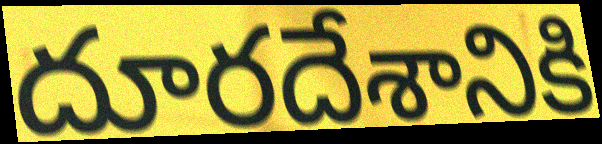
దూరదేశానికి